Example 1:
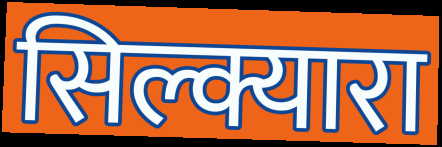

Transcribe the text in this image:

सिल्क्यारा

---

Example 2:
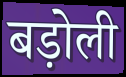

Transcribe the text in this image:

बड़ोली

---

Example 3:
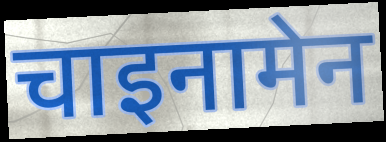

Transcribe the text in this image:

चाइनामेन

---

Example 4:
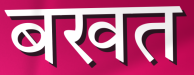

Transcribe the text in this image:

बखत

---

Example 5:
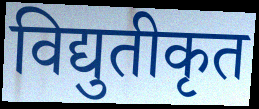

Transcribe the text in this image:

विद्युतीकृत